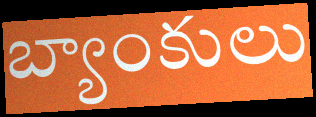
బ్యాంకులు